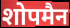
शोपमैन